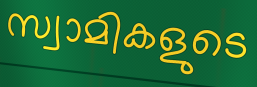
സ്വാമികളുടെ